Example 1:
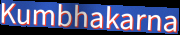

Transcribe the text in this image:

Kumbhakarna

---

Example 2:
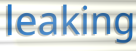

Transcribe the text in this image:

leaking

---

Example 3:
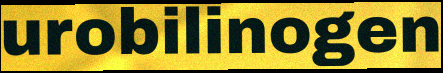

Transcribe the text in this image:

urobilinogen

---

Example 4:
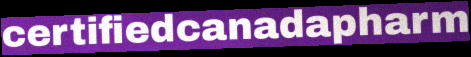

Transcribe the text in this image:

certifiedcanadapharm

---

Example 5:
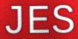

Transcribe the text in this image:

JES